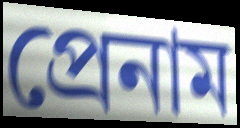
প্রেনাম